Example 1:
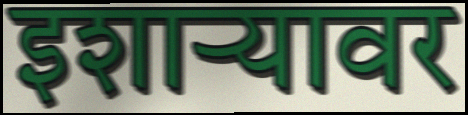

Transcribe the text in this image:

इशाऱ्यावर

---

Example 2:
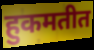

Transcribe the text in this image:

हुकमतीत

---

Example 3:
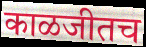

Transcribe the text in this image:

काळजीतच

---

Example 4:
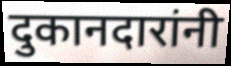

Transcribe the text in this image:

दुकानदारांनी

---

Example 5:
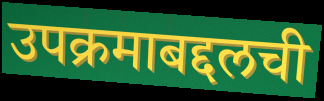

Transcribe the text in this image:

उपक्रमाबद्दलची